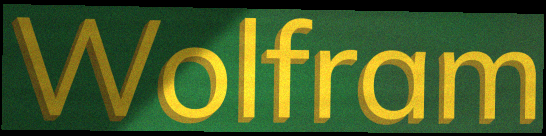
Wolfram